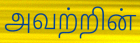
அவற்றின்